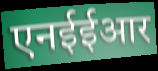
एनईईआर